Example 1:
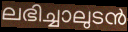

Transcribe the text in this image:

ലഭിച്ചാലുടൻ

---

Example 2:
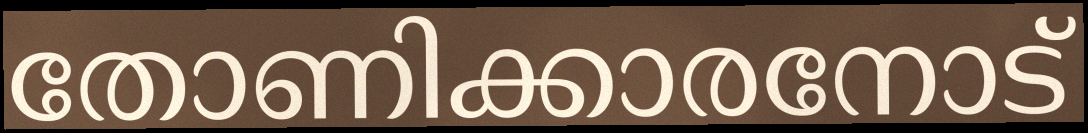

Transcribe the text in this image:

തോണിക്കാരനോട്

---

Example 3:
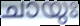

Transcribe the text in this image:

ചായുഃ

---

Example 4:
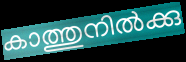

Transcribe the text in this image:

കാത്തുനിൽക്കു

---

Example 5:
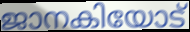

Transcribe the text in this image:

ജാനകിയോട്